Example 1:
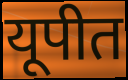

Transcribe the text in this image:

यूपीत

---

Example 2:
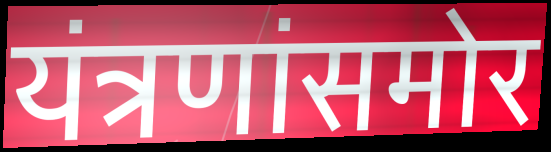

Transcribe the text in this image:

यंत्रणांसमोर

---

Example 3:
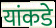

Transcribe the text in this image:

यांकडे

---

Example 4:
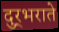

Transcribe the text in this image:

दुर्भराते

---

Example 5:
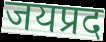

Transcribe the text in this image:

जयप्रद